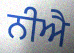
ਨੀਐ